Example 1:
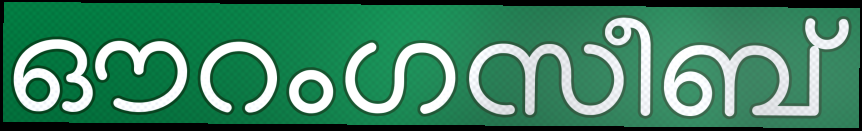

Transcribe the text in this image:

ഔറംഗസീബ്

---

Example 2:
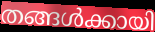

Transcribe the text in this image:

തങ്ങൾക്കായി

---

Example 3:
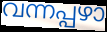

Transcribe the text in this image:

വന്നപ്പഴാ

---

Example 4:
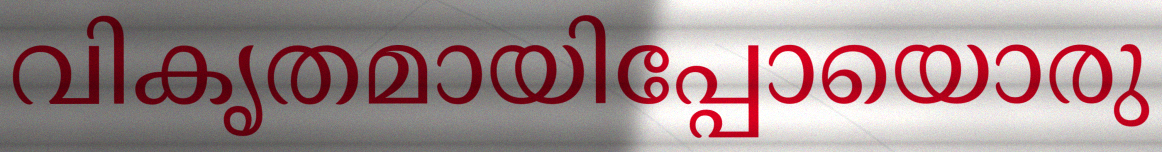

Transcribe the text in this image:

വികൃതമായിപ്പോയൊരു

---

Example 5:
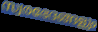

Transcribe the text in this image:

സ്വരഭേദങ്ങളും